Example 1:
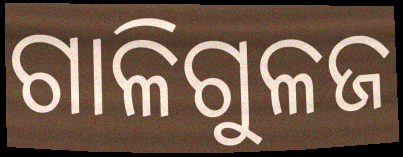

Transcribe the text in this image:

ଗାଳିଗୁଳଜ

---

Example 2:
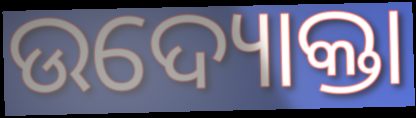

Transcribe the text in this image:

ଉଦ୍ୟୋକ୍ତା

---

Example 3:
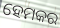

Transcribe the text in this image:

ହେମକର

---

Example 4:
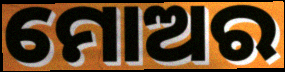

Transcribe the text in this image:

ମୋଅର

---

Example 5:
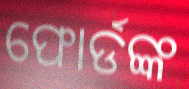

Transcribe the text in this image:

ଫୋର୍ଡଙ୍କ